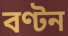
বণ্টন